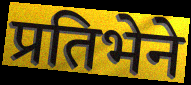
प्रतिभेने